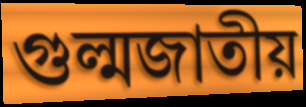
গুল্মজাতীয়